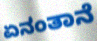
ಏನಂತಾನೆ